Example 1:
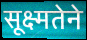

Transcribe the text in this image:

सूक्ष्मतेने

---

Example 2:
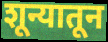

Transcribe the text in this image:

शून्यातून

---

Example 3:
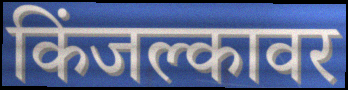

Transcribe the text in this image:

किंजल्कावर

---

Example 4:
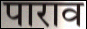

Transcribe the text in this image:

पाराव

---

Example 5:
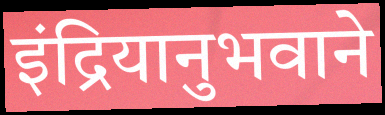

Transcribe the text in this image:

इंद्रियानुभवाने